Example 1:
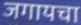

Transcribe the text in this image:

जगायचा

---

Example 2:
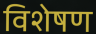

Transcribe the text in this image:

विशेषण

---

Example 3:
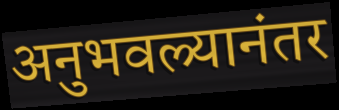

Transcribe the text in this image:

अनुभवल्यानंतर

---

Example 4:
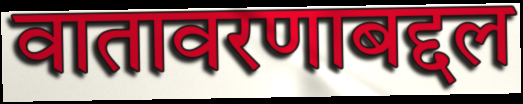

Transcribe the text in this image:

वातावरणाबद्दल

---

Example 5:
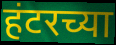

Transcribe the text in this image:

हंटरच्या